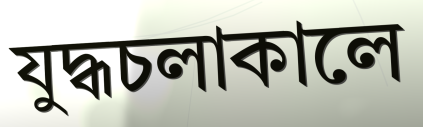
যুদ্ধচলাকালে